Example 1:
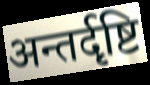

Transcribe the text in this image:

अन्तर्दृष्टि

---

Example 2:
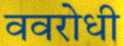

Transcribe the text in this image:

ववरोधी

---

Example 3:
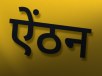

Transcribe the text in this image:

ऐंठन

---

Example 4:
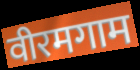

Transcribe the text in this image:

वीरमगाम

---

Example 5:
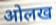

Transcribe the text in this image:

ओलख